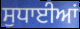
ਸੁਧਾਈਆਂ